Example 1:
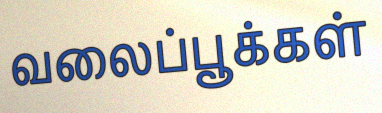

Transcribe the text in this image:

வலைப்பூக்கள்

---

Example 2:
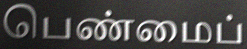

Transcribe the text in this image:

பெண்மைப்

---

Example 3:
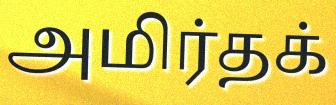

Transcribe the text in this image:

அமிர்தக்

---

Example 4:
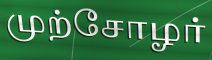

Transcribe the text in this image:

முற்சோழர்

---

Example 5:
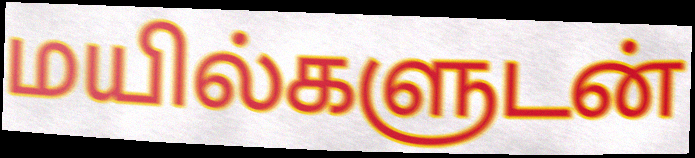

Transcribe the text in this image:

மயில்களுடன்